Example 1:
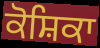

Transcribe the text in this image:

ਕੋਸ਼ਿਕਾ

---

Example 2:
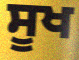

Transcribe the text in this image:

ਸੂਖ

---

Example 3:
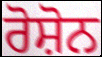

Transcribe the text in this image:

ਰੋਸ਼ੋਨ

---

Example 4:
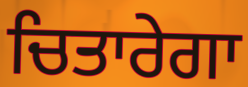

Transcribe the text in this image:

ਚਿਤਾਰੇਗਾ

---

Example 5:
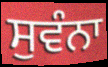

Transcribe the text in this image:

ਸੁਵੰਨਾ